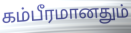
கம்பீரமானதும்